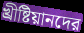
খ্রীষ্টিয়ানদের